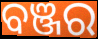
ବଞ୍ଜର